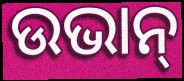
ଉଭାନ୍